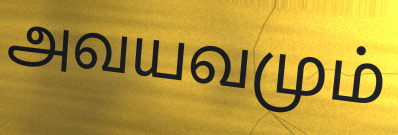
அவயவமும்